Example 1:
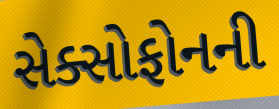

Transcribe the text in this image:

સેક્સોફોનની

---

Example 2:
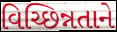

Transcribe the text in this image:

વિચ્છિન્નતાને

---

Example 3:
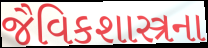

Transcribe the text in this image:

જૈવિકશાસ્ત્રના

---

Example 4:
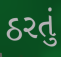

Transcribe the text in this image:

ઠરતું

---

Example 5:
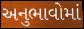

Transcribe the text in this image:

અનુભાવોમાં